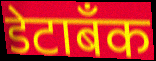
डेटाबँक